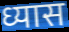
ध्यास